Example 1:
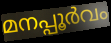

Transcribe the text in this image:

മനപ്പൂർവം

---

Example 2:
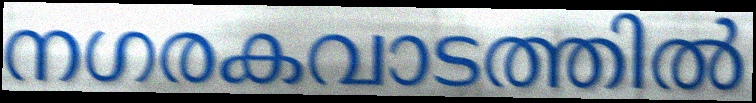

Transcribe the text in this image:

നഗരകവാടത്തിൽ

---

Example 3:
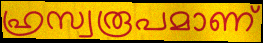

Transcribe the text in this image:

ഹ്രസ്വരൂപമാണ്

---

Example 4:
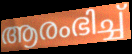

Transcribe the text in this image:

ആരംഭിച്ച്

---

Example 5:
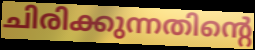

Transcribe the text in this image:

ചിരിക്കുന്നതിന്റെ